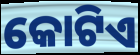
କୋଟିଏ